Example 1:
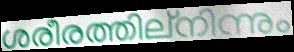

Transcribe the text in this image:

ശരീരത്തില്നിന്നും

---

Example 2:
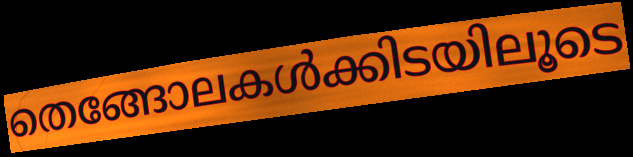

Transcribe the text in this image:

തെങ്ങോലകൾക്കിടയിലൂടെ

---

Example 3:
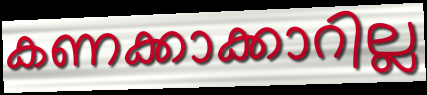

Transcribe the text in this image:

കണക്കാക്കാറില്ല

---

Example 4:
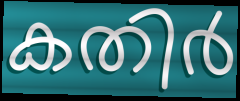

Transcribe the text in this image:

കതിർ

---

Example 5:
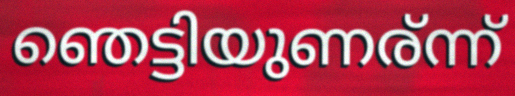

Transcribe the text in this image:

ഞെട്ടിയുണര്ന്ന്